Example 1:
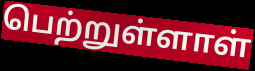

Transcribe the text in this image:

பெற்றுள்ளாள்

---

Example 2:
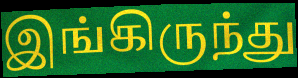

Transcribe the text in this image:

இங்கிருந்து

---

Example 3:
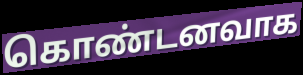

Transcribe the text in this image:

கொண்டனவாக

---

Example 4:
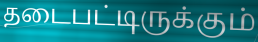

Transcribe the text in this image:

தடைபட்டிருக்கும்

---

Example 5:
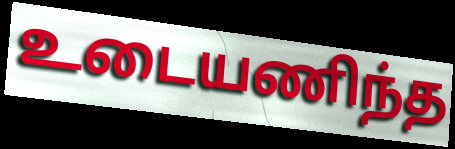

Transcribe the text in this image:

உடையணிந்த